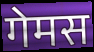
गेमस